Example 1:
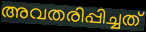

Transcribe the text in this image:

അവതരിപ്പിച്ചത്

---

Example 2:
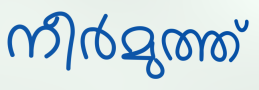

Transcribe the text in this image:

നീർമുത്ത്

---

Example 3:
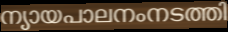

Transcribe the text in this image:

ന്യായപാലനംനടത്തി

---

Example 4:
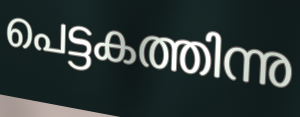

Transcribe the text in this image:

പെട്ടകത്തിന്നു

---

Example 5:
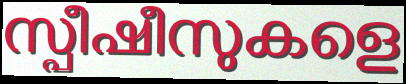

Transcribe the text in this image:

സ്പീഷീസുകളെ